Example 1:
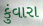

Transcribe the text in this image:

કુંવારા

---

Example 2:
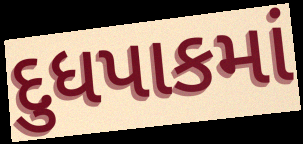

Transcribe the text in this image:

દુધપાકમાં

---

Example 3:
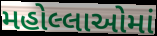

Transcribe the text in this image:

મહોલ્લાઓમાં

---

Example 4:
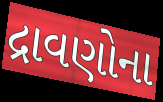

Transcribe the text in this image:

દ્રાવણોના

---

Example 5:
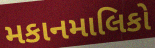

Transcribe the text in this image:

મકાનમાલિકો